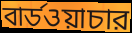
বার্ডওয়াচার